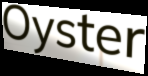
Oyster